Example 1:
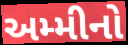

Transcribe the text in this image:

અમ્મીનો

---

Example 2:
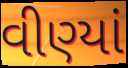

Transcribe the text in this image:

વીણ્યાં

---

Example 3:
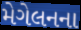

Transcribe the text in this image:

મેગેલનના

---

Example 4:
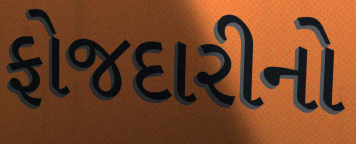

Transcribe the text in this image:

ફોજદારીનો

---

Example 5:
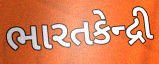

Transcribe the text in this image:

ભારતકેન્દ્રી